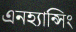
এনহ্যান্সিং